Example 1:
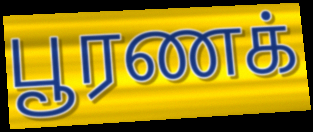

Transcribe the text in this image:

பூரணக்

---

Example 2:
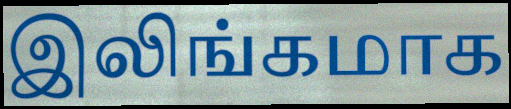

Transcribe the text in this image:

இலிங்கமாக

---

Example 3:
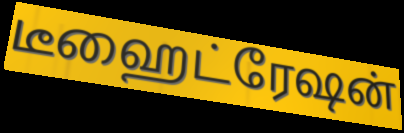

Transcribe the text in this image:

டீஹைட்ரேஷன்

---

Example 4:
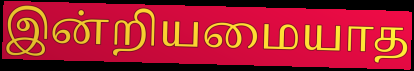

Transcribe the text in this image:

இன்றியமையாத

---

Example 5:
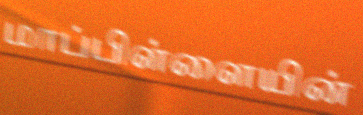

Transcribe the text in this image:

மாப்பிள்ளையின்